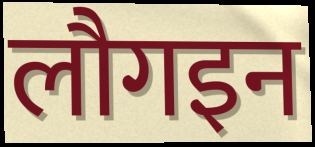
लौगइन